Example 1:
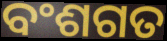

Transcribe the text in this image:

ବଂଶଗତ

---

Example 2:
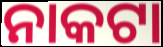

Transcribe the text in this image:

ନାକଟା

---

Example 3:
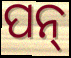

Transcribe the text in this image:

ପନ୍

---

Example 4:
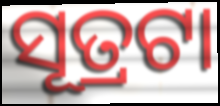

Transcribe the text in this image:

ସୂତ୍ରଟା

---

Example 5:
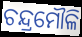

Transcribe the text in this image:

ଚନ୍ଦ୍ରମୌଳି